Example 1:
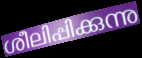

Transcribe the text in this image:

ശീലിപ്പിക്കുന്നു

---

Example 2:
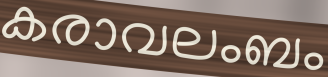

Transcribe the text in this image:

കരാവലംബം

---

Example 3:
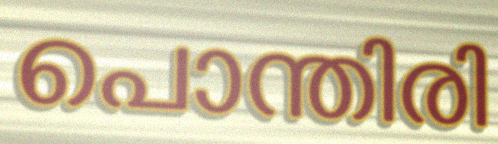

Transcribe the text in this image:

പൊന്തിരി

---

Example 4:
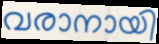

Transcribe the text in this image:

വരാനായി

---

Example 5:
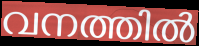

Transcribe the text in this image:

വനത്തിൽ